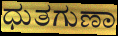
ಧುತಗುಣಾ